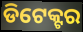
ଡିଟେକ୍ଟର